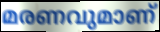
മരണവുമാണ്